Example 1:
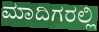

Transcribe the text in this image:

ಮಾದಿಗರಲ್ಲಿ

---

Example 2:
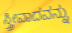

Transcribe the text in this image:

ಸ್ತ್ರೀವಾದವನ್ನು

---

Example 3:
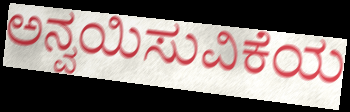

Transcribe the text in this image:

ಅನ್ವಯಿಸುವಿಕೆಯ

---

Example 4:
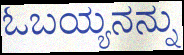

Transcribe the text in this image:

ಓಬಯ್ಯನನ್ನು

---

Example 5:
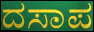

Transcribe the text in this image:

ದಸಾಪ